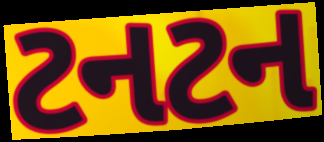
ટનટન